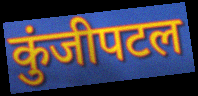
कुंजीपटल